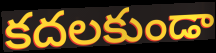
కదలకుండా